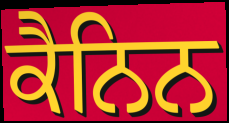
ਕੈਨਿਨ